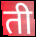
ती